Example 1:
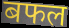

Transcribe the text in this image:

बफल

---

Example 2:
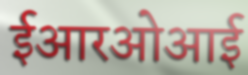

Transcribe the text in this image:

ईआरओआई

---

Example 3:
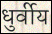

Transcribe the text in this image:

धुर्वीय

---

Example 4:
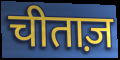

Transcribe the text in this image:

चीताज़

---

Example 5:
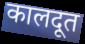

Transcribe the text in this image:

कालदूत